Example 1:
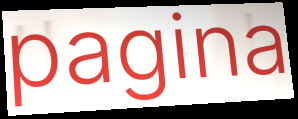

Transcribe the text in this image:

pagina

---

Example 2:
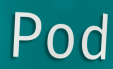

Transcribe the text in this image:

Pod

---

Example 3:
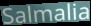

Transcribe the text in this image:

Salmalia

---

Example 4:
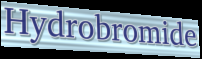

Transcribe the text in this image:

Hydrobromide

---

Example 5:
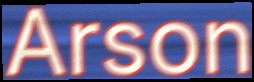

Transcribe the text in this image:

Arson